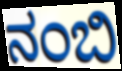
ನಂಬಿ